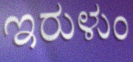
ಇರುಳುಂ